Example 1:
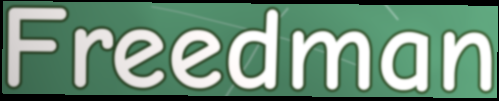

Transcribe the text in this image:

Freedman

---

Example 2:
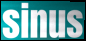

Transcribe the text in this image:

sinus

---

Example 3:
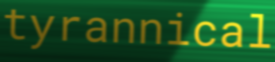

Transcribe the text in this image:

tyrannical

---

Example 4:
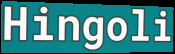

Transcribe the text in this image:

Hingoli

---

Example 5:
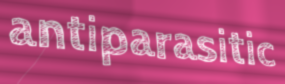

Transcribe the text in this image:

antiparasitic